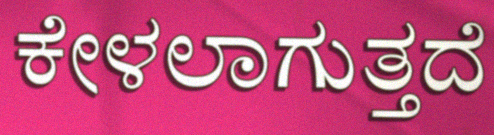
ಕೇಳಲಾಗುತ್ತದೆ